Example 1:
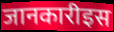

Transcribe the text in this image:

जानकारीइस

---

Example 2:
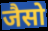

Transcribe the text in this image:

जैसो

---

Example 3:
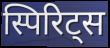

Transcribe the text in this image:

स्पिरिट्स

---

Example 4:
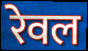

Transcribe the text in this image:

रेवल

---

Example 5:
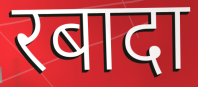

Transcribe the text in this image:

रबादा